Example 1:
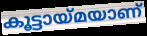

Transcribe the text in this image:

കൂട്ടായ്മയാണ്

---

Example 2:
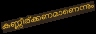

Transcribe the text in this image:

കണ്ണീര്ക്കണമാണെന്നും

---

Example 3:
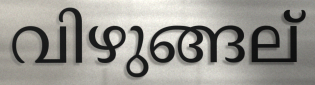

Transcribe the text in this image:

വിഴുങ്ങല്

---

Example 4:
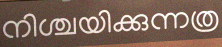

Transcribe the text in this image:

നിശ്ചയിക്കുന്നത്ര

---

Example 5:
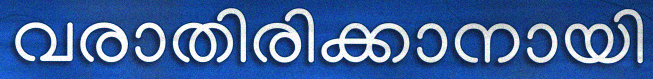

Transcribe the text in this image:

വരാതിരിക്കാനായി